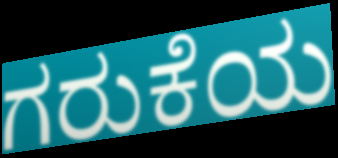
ಗರುಕೆಯ